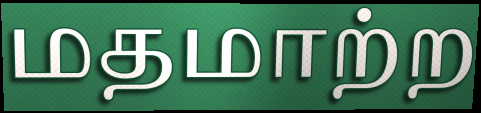
மதமாற்ற